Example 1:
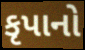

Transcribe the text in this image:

કૃપાનો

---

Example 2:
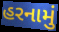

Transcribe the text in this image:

હરનામું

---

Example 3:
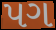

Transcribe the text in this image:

પગ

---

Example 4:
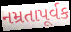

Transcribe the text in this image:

નમ્રતાપૂર્વક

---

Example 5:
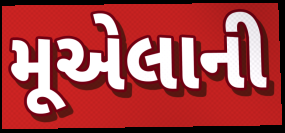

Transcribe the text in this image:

મૂએલાની